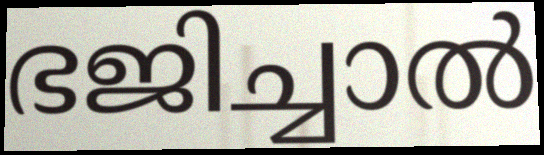
ഭജിച്ചാൽ